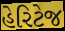
હેરિટેજ